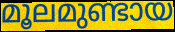
മൂലമുണ്ടായ